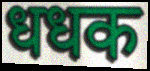
धधक